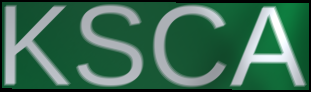
KSCA